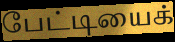
பேட்டியைக்